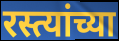
रस्त्यांच्या